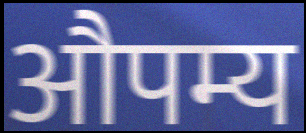
औपम्य